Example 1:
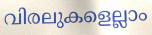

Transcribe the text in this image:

വിരലുകളെല്ലാം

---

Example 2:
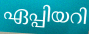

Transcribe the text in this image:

ഏപ്പിയറി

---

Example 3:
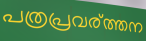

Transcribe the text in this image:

പത്രപ്രവര്ത്തന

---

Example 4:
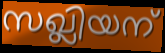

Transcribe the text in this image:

സഖ്ലിയന്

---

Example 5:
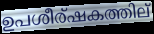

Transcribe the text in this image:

ഉപശീര്ഷകത്തില്